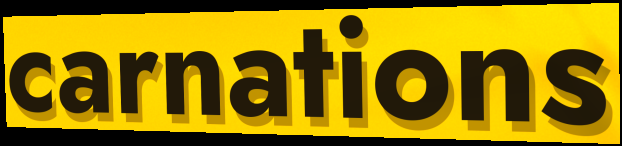
carnations